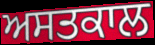
ਅਸਤਕਾਲ